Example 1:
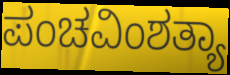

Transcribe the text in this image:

ಪಂಚವಿಂಶತ್ಯಾ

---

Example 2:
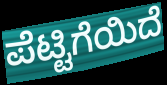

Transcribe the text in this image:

ಪೆಟ್ಟಿಗೆಯಿದೆ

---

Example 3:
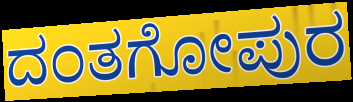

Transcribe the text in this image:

ದಂತಗೋಪುರ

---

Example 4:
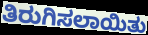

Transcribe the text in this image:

ತಿರುಗಿಸಲಾಯಿತು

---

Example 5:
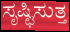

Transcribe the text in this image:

ಸೃಷ್ಟಿಸುತ್ತ